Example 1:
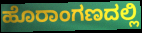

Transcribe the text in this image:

ಹೊರಾಂಗಣದಲ್ಲಿ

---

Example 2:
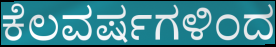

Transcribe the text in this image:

ಕೆಲವರ್ಷಗಳಿಂದ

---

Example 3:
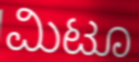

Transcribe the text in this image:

ಮಿಟೂ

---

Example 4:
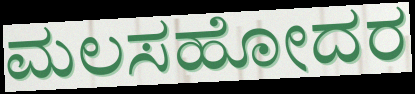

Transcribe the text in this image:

ಮಲಸಹೋದರ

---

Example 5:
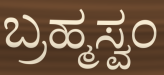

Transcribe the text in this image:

ಬ್ರಹ್ಮಸ್ವಂ